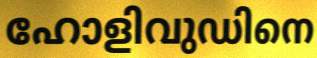
ഹോളിവുഡിനെ